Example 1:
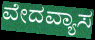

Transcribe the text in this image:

ವೇದವ್ಯಾಸ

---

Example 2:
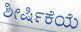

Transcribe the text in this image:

ಶೀರ್ಷಿಕೆಯೆ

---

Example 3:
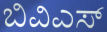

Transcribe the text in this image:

ಬಿವಿಎಸ್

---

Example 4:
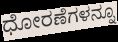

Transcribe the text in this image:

ಧೋರಣೆಗಳನ್ನೂ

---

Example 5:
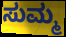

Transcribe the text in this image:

ಸುಮ್ಮ